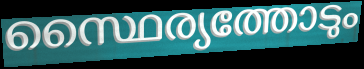
സ്ഥൈര്യത്തോടും